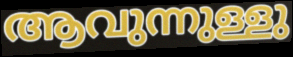
ആവുന്നുള്ളു